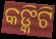
କଙ୍କିଟି